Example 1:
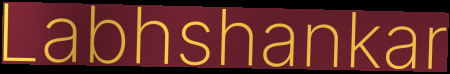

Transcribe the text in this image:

Labhshankar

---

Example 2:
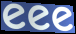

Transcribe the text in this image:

eee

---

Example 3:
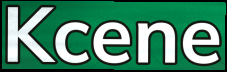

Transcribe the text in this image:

Kcene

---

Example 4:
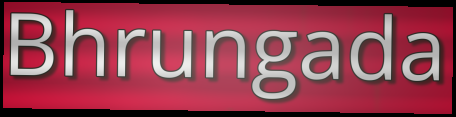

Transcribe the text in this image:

Bhrungada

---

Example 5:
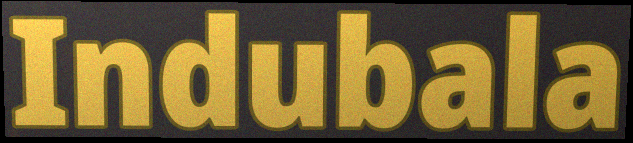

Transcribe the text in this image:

Indubala